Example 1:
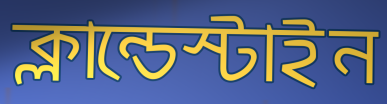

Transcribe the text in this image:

ক্লান্ডেস্টাইন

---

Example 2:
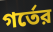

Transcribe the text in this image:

গর্তের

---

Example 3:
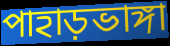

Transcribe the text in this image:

পাহাড়ভাঙ্গা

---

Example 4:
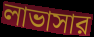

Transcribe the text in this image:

লাভাসার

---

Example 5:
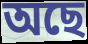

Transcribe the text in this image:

অছে